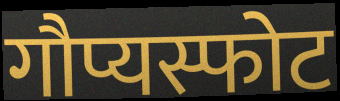
गौप्यस्फोट